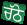
ਚੱਠੇ